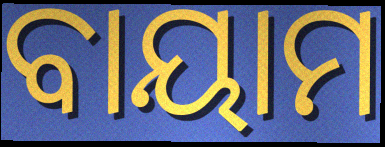
ବାୟାମ